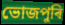
ভোজপুৰি